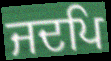
ਜਦਪਿ